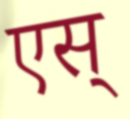
एस्